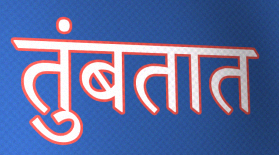
तुंबतात